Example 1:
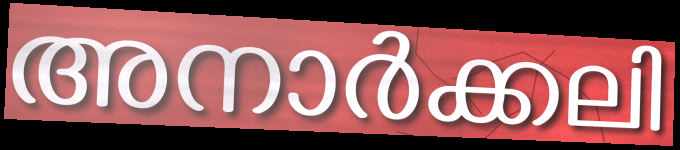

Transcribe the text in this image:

അനാർക്കലി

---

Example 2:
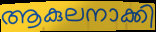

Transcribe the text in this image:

ആകുലനാക്കി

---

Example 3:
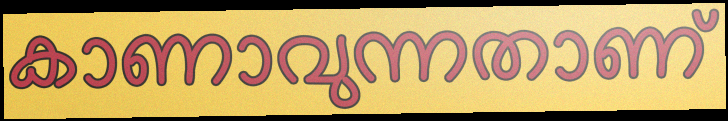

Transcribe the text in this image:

കാണാവുന്നതാണ്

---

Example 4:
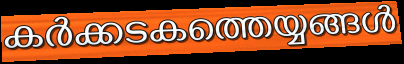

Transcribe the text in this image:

കർക്കടകത്തെയ്യങ്ങൾ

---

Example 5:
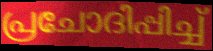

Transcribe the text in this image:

പ്രചോദിപ്പിച്ച്